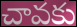
చావకు